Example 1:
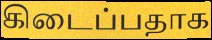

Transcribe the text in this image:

கிடைப்பதாக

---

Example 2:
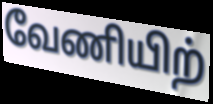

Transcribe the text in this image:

வேணியிற்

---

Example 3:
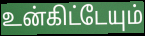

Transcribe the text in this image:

உன்கிட்டேயும்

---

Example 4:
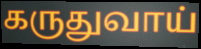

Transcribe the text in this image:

கருதுவாய்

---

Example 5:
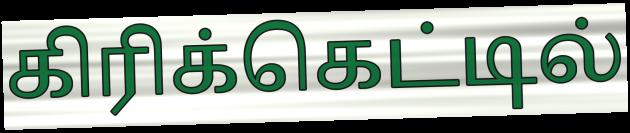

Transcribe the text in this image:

கிரிக்கெட்டில்